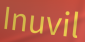
Inuvil